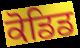
ਕੋਡਿਡ